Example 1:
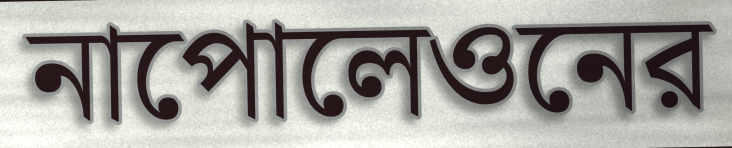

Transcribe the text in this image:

নাপোলেওনের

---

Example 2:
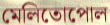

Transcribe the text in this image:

মেলিতোপোল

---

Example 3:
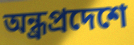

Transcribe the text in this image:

অন্ধ্রপ্রদেশে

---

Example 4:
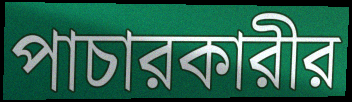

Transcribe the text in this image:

পাচারকারীর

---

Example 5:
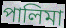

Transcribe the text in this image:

পালিমা